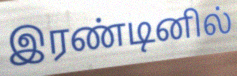
இரண்டினில்